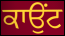
ਕਾਉਂਟ